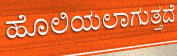
ಹೊಲಿಯಲಾಗುತ್ತದೆ